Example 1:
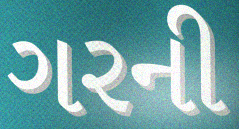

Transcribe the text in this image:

ગરની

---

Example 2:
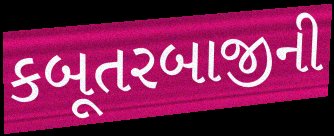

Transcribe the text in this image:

કબૂતરબાજીની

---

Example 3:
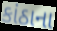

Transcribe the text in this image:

કાંઠાના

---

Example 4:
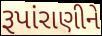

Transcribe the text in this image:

રૂપાંરાણીને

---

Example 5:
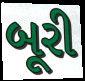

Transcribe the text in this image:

બૂરી